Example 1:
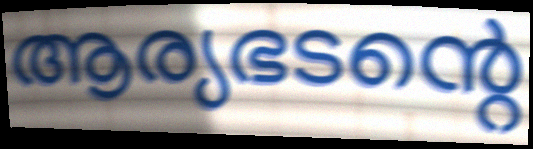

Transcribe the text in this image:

ആര്യഭടന്റെ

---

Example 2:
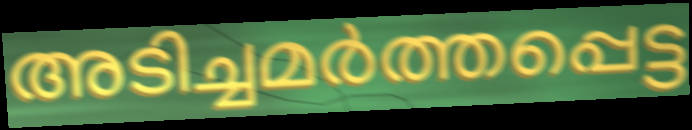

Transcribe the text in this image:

അടിച്ചമർത്തപ്പെട്ട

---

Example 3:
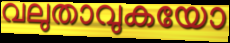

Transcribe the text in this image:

വലുതാവുകയോ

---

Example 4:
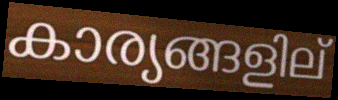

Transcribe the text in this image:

കാര്യങ്ങളില്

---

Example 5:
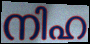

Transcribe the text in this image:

നിഹ